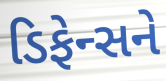
ડિફેન્સને